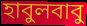
হাবুলবাবু